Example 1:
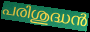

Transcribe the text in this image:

പരിശുദ്ധൻ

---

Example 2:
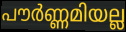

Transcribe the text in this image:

പൗർണ്ണമിയല്ല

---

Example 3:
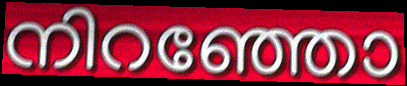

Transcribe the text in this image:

നിറഞ്ഞോ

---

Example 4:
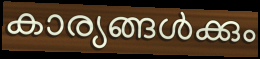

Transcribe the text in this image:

കാര്യങ്ങൾക്കും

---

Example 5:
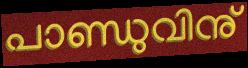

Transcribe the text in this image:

പാണ്ഡുവിനു്